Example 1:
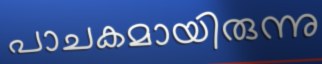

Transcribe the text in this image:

പാചകമായിരുന്നു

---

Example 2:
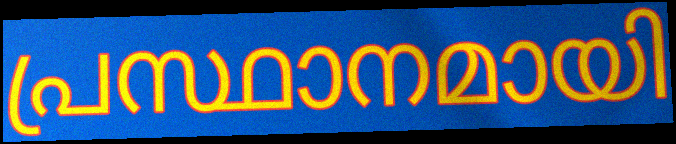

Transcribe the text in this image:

പ്രസ്ഥാനമായി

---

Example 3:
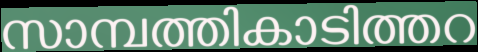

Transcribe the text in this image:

സാമ്പത്തികാടിത്തറ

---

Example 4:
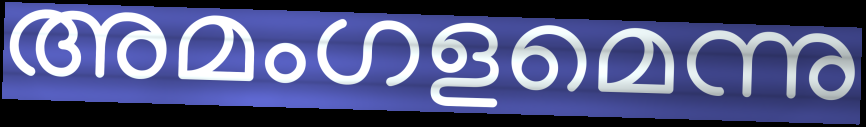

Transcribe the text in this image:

അമംഗളമെന്നു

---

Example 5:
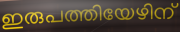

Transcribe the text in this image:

ഇരുപത്തിയേഴിന്